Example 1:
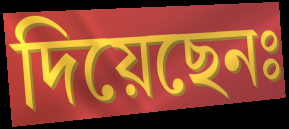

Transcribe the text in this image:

দিয়েছেনঃ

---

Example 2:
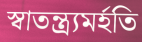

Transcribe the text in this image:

স্বাতন্ত্র্যমর্হতি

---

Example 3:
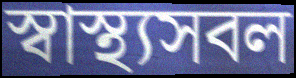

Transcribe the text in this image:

স্বাস্থ্যসবল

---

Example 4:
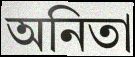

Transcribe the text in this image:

অনিতা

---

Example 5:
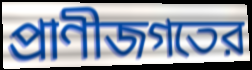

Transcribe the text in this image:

প্রাণীজগতের